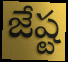
జేష్ట